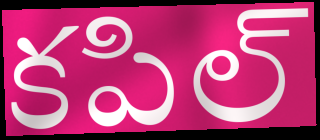
కపిల్